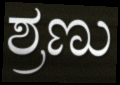
ಶ್ರಣು